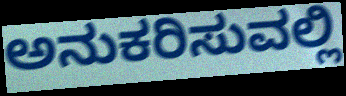
ಅನುಕರಿಸುವಲ್ಲಿ